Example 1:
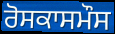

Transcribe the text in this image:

ਰੋਸਕਾਸਮੌਸ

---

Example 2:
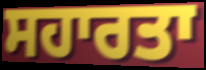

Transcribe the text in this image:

ਸਹਾਰਤਾ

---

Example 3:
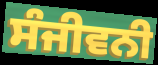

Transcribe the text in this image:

ਸੰਜੀਵਨੀ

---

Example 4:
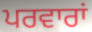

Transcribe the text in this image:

ਪਰਵਾਰਾਂ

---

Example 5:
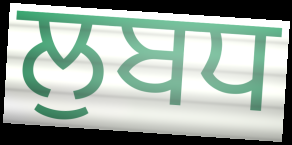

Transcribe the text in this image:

ਲੁਬਧ